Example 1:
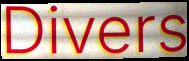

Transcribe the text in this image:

Divers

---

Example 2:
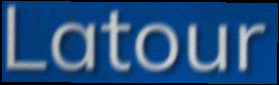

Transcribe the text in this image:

Latour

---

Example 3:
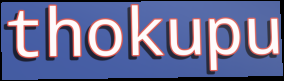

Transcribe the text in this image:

thokupu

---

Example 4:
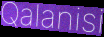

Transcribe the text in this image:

Qalanisi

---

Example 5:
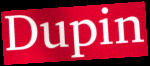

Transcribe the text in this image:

Dupin